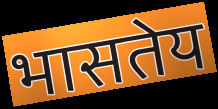
भासतेय